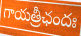
గాయత్రీఛందః